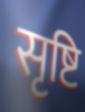
सृष्टि